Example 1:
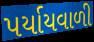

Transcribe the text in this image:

પર્યાયવાળી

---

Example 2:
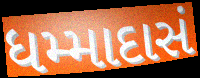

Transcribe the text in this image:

ધમ્માદાસં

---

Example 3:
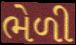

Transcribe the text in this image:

ભેળી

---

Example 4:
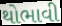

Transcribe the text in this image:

થોભાવી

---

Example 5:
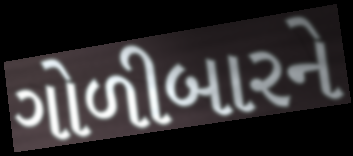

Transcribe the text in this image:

ગોળીબારને